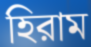
হিরাম